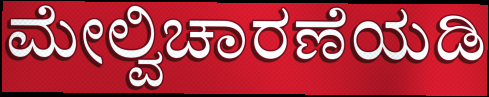
ಮೇಲ್ವಿಚಾರಣೆಯಡಿ